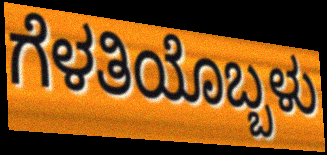
ಗೆಳತಿಯೊಬ್ಬಳು